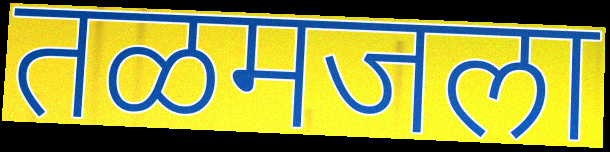
तळमजला